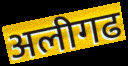
अलीगढ